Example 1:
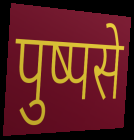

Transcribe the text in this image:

पुष्पसे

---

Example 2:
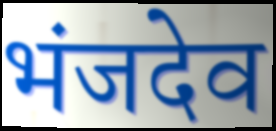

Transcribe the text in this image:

भंजदेव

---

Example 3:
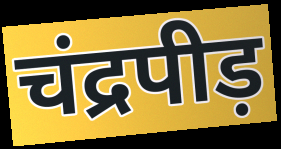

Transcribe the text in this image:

चंद्रपीड़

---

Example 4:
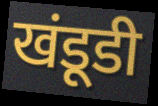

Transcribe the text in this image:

खंडूडी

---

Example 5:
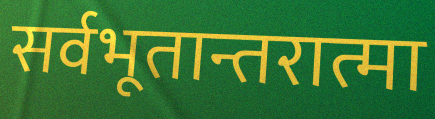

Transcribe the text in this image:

सर्वभूतान्तरात्मा